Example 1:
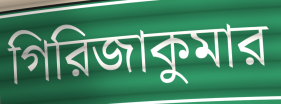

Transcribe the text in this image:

গিরিজাকুমার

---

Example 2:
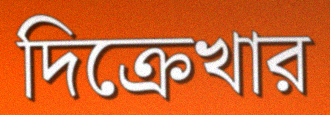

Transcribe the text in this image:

দিক্রেখার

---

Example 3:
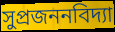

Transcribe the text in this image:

সুপ্রজননবিদ্যা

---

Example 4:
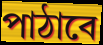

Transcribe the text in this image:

পাঠাবে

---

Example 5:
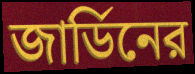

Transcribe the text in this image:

জার্ডিনের